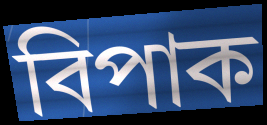
বিপাক